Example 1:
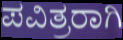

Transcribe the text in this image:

ಪವಿತ್ರರಾಗಿ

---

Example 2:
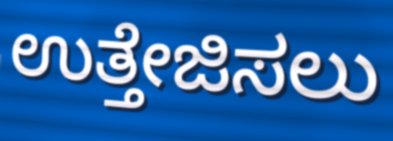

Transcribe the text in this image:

ಉತ್ತೇಜಿಸಲು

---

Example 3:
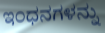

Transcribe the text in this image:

ಇಂಧನಗಳನ್ನು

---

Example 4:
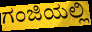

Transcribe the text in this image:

ಗಂಜಿಯಲ್ಲಿ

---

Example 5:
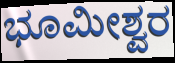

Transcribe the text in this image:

ಭೂಮೀಶ್ವರ